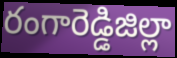
రంగారెడ్డిజిల్లా